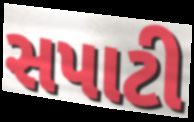
સપાટી